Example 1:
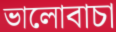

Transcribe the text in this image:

ভালোবাচা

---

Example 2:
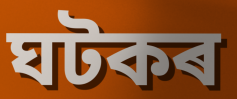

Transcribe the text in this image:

ঘটকৰ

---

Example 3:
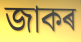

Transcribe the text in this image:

জাকৰ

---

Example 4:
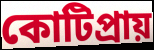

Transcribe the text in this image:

কোটিপ্ৰায়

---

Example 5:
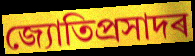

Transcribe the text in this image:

জ্যোতিপ্ৰসাদৰ